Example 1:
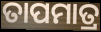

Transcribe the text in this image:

ତାପମାତ୍ର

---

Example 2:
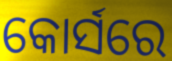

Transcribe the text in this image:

କୋର୍ସରେ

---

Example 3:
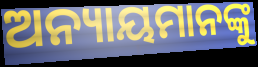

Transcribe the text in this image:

ଅନ୍ୟାୟମାନଙ୍କୁ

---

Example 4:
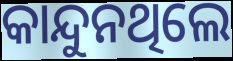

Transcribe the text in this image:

କାନ୍ଦୁନଥିଲେ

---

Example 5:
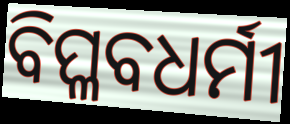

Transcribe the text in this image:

ବିପ୍ଳବଧର୍ମୀ